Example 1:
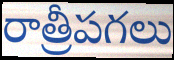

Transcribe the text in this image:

రాత్రీపగలు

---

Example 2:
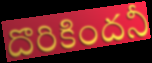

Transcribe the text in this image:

దొరికిందనీ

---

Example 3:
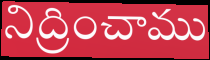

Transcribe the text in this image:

నిద్రించాము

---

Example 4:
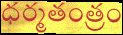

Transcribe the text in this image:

ధర్మతంత్రం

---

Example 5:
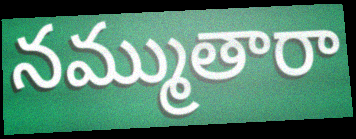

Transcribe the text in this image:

నమ్ముతారా